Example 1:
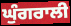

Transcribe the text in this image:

ਘੁੰਗਰਾਲੀ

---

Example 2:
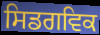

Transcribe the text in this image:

ਸਿਡਗਵਿਕ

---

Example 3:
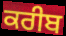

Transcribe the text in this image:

ਕਰੀਬ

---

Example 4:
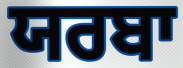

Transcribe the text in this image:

ਯਰਬਾ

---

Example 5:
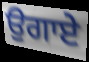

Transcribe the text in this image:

ਉਗਾਏ